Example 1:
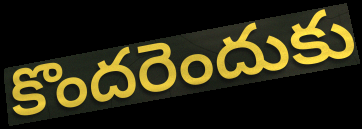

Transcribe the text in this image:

కొందరెందుకు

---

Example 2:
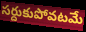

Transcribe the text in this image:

సర్దుకుపోవటమే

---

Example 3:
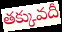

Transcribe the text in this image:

తక్కువదీ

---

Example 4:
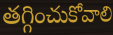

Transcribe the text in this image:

తగ్గించుకోవాలి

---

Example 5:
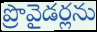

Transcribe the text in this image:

ప్రొవైడర్లను